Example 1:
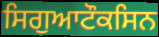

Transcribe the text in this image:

ਸਿਗੁਆਟੌਕਸਿਨ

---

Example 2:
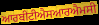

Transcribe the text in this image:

ਆਰਬੀਟੀਐਸਆਰਐਮਸੀ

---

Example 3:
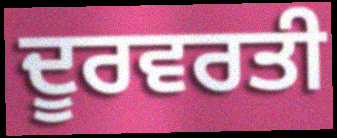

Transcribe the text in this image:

ਦੂਰਵਰਤੀ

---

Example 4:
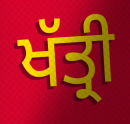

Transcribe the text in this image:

ਖੱਤ੍ਰੀ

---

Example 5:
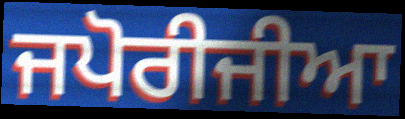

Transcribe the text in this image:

ਜਪੋਰੀਜੀਆ